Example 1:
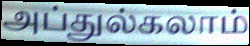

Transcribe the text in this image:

அப்துல்கலாம்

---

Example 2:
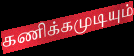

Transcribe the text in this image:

கணிக்கமுடியும்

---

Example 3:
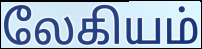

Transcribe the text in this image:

லேகியம்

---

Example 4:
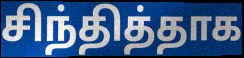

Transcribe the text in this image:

சிந்தித்தாக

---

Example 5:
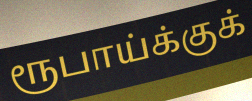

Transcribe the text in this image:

ரூபாய்க்குக்